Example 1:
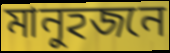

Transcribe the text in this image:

মানুহজনে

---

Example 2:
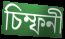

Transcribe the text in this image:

চিম্ফনী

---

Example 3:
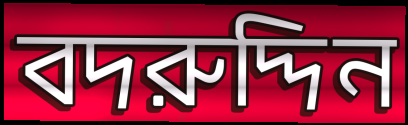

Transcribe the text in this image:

বদৰুদ্দিন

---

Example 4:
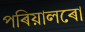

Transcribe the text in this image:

পৰিয়ালৰো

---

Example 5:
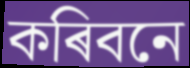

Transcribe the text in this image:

কৰিবনে